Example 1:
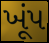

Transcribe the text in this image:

ખૂંપ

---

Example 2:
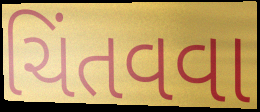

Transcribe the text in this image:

ચિંતવવા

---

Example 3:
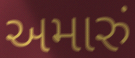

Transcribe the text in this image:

અમારું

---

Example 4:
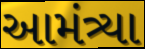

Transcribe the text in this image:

આમંત્ર્યા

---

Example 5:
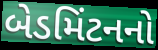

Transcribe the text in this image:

બેડમિંટનનો